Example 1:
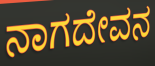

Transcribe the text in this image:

ನಾಗದೇವನ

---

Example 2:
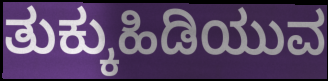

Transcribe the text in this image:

ತುಕ್ಕುಹಿಡಿಯುವ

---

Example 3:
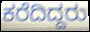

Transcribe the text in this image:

ಕರೆದಿದ್ದರು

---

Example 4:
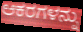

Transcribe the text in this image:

ಆಕರಗಳನ್ನು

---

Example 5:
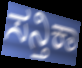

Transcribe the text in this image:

ಸನ್ತಿಕಾ